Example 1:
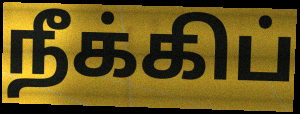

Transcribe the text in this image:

நீக்கிப்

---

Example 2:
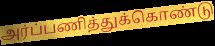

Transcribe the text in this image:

அர்ப்பணித்துக்கொண்டு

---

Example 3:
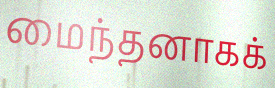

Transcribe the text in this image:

மைந்தனாகக்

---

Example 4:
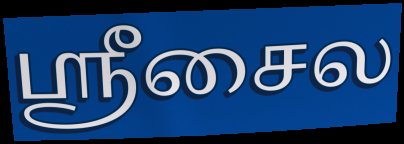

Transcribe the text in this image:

ஸ்ரீசைல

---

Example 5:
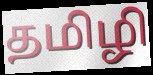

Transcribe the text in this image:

தமிழி